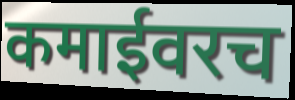
कमाईवरच